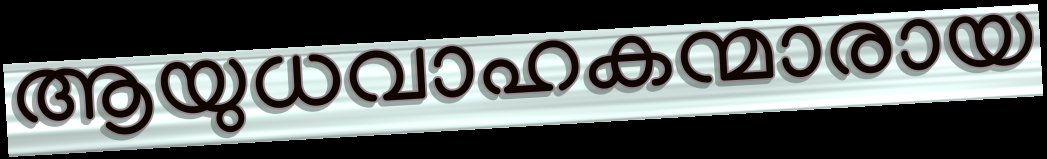
ആയുധവാഹകന്മാരായ